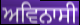
ਅਵਿਨਾਸੀ